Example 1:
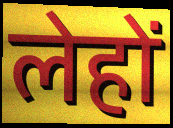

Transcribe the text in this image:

लेहों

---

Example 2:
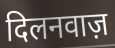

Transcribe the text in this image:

दिलनवाज़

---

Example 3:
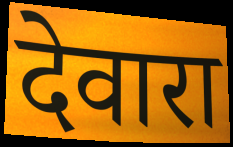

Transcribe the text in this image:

देवारा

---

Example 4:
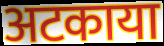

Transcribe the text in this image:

अटकाया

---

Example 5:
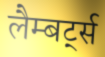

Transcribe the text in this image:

लैम्बर्ट्स